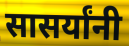
सासर्यांनी